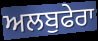
ਅਲਬੁਫੇਰਾ